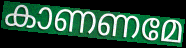
കാണണമേ